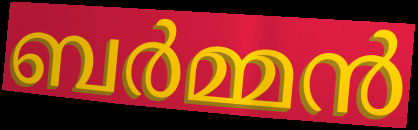
ബർമ്മൻ